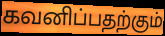
கவனிப்பதற்கும்